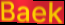
Baek